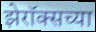
झेरॉक्सच्या